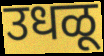
उधळू